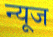
न्यूज